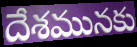
దేశమునకు